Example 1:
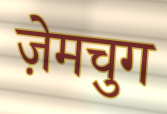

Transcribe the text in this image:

ज़ेमचुग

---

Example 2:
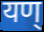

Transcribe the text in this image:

यण्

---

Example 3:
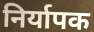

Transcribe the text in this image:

निर्यापक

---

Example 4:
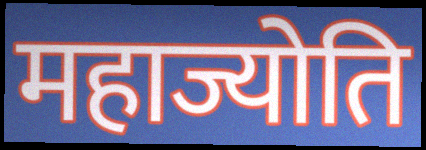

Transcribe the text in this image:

महाज्योति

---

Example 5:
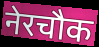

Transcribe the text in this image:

नेरचौक